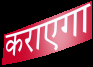
कराएगा